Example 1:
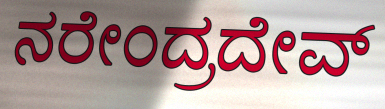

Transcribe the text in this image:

ನರೇಂದ್ರದೇವ್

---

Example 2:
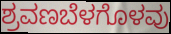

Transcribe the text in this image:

ಶ್ರವಣಬೆಳಗೊಳವು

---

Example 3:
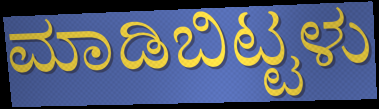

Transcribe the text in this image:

ಮಾಡಿಬಿಟ್ಟಳು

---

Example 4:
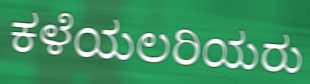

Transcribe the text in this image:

ಕಳೆಯಲರಿಯರು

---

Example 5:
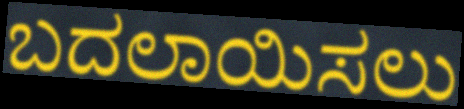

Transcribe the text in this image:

ಬದಲಾಯಿಸಲು